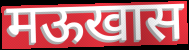
मऊखास